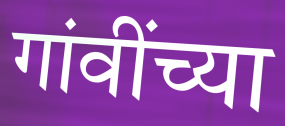
गांवींच्या